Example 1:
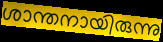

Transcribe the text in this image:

ശാന്തനായിരുന്നു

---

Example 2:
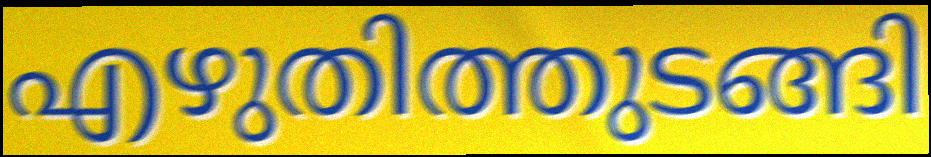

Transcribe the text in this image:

എഴുതിത്തുടങ്ങി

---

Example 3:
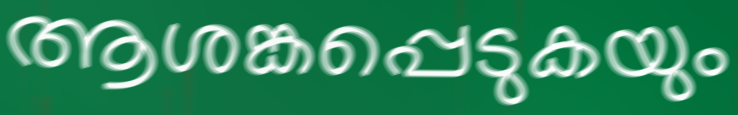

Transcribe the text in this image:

ആശങ്കപ്പെടുകയും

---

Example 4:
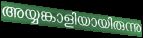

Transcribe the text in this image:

അയ്യങ്കാളിയായിരുന്നു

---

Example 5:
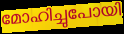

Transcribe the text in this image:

മോഹിച്ചുപോയി